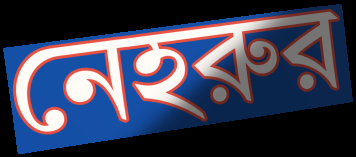
নেহরুর